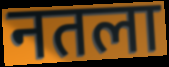
नतला